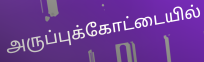
அருப்புக்கோட்டையில்